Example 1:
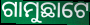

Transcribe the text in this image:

ଗାମୁଛାଟେ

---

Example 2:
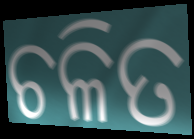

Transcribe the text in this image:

ଚଳିତ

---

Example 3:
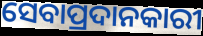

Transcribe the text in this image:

ସେବାପ୍ରଦାନକାରୀ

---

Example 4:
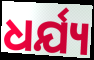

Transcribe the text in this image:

ଧର୍ଯ୍ୟ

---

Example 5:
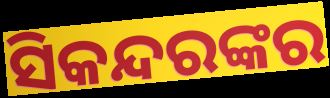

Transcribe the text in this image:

ସିକନ୍ଦରଙ୍କର